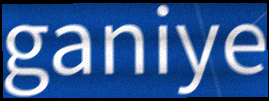
ganiye